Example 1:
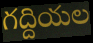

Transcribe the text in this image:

గద్దియల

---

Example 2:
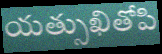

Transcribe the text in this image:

యత్సుఖితోపి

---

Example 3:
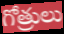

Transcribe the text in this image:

గోత్రులు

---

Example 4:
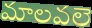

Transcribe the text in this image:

మాలవలె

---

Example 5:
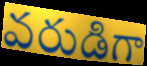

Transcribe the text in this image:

వరుడిగా